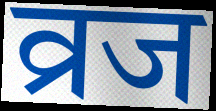
व्रज